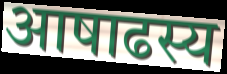
आषाढस्य